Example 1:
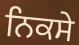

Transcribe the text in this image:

ਨਿਕਸੇ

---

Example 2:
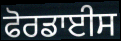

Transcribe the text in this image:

ਫੋਰਡਾਈਸ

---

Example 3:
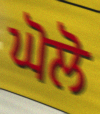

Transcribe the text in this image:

ਘੋਲੋ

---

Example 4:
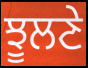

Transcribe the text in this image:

ਝੂਲਣੇ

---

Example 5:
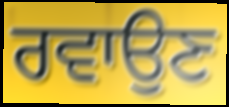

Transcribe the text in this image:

ਰਵਾਉਣ